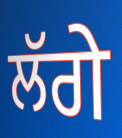
ਲੱਗੇ